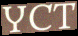
YCT